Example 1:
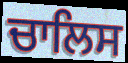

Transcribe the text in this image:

ਚਾਲਿਸ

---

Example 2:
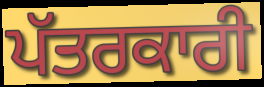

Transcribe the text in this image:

ਪੱਤਰਕਾਰੀ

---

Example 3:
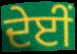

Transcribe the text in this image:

ਦੇਈਂ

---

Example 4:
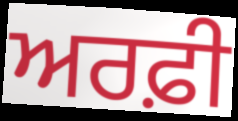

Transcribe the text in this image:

ਅਰਫ਼ੀ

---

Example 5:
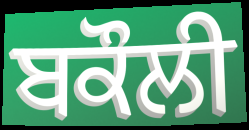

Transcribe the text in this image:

ਬਕੌਲੀ